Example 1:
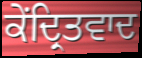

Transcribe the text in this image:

ਕੇਂਦ੍ਰਿਤਵਾਦ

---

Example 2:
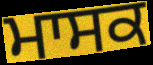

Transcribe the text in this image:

ਮਾਸਕ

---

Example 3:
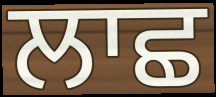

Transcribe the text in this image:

ਲਾਛ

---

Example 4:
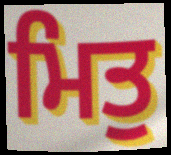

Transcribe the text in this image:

ਮਿਤੁ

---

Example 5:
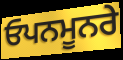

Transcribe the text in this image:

ਓਪਨਮੂਨਰੇ